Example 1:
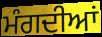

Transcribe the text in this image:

ਮੰਗਦੀਆਂ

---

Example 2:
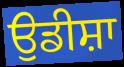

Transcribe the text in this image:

ਉਡੀਸ਼ਾ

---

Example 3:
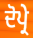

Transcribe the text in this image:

ਦੋਪ੍ਰੇ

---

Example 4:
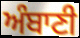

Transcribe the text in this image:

ਅੰਬਾਣੀ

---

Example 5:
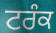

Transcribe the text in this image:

ਟਰੰਕ